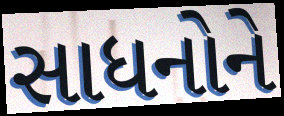
સાધનોને